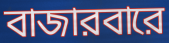
বাজারবারে